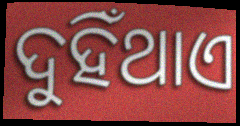
ଦୁହିଁଥାଏ